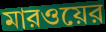
মারওয়ের